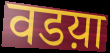
वडय़ा